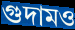
গুদামও